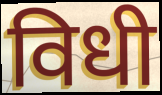
विधी